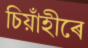
চিয়াঁহীৰে